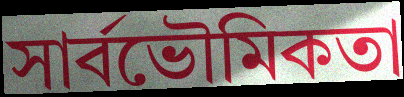
সার্বভৌমিকতা